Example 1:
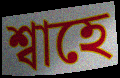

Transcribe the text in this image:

শ্বাহে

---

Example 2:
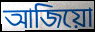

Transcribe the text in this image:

আজিয়ো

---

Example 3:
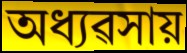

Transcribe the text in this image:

অধ্যৱসায়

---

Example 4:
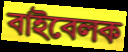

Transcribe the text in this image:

বাইবেলক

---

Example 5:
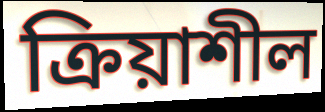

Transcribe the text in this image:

ক্ৰিয়াশীল